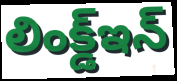
లింక్డ్ఇన్